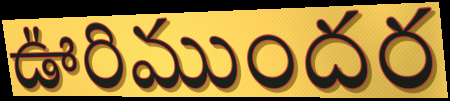
ఊరిముందర